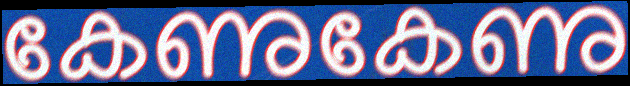
കേണുകേണു